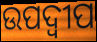
ଉପଦ୍ବୀପ